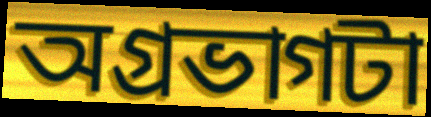
অগ্রভাগটা